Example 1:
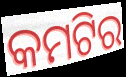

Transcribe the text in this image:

କମଟିର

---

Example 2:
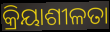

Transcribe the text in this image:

କ୍ରିୟାଶୀଳତା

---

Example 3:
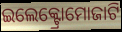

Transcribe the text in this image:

ଇଲେକ୍ଟ୍ରୋମୋଜାଟି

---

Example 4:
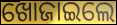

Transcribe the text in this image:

ଖୋଜାଇଲେ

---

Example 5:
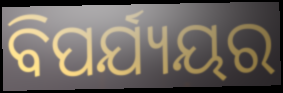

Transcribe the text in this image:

ବିପର୍ଯ୍ଯୟର